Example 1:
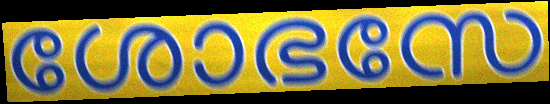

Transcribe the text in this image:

ശോഭസേ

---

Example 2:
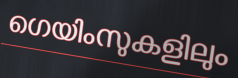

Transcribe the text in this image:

ഗെയിംസുകളിലും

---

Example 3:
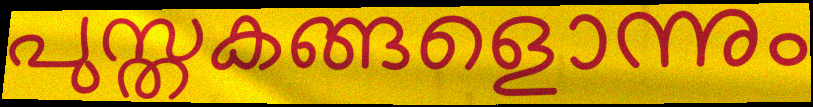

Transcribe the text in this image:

പുസ്തകങ്ങളൊന്നും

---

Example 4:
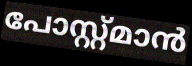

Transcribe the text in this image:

പോസ്റ്റ്മാൻ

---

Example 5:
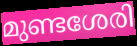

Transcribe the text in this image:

മുണ്ടശേരി